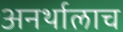
अनर्थालाच